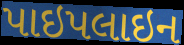
પાઇપલાઇન